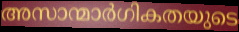
അസാന്മാർഗികതയുടെ